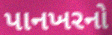
પાનખરનો